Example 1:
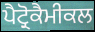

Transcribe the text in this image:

ਪੈਟ੍ਰੋਕੈਮੀਕਲ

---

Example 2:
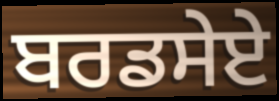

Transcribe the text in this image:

ਬਰਡਸੇਏ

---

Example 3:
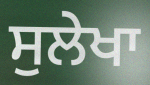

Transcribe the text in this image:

ਸੁਲੇਖਾ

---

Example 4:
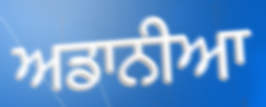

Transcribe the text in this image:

ਅਡਾਨੀਆ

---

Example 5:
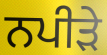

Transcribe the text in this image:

ਨਪੀੜੇ